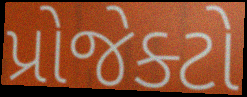
પ્રોજેક્ટો